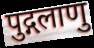
पुद्गलाणु